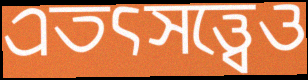
এতৎসত্ত্বেও